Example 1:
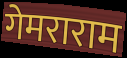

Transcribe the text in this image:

गेमराराम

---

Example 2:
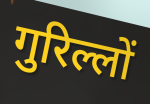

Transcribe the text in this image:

गुरिल्लों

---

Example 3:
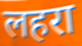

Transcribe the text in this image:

लहरा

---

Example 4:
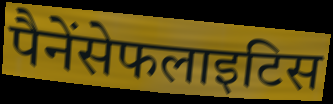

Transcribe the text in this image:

पैनेंसेफलाइटिस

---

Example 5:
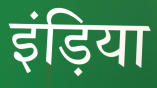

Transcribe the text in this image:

इंड़िया